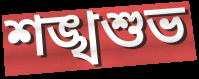
শঙ্খশুভ